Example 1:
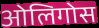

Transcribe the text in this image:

ओलिगोस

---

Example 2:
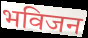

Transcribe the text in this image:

भविजन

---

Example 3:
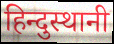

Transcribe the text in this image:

हिन्दुस्थानी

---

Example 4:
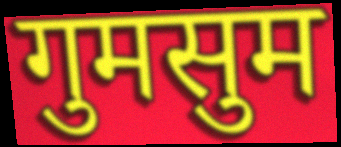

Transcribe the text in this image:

गुमसुम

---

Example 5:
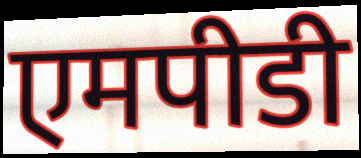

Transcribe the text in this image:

एमपीडी